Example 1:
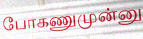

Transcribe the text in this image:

போகணுமுன்னு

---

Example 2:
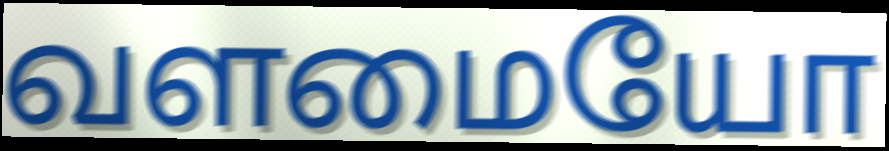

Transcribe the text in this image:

வளமையோ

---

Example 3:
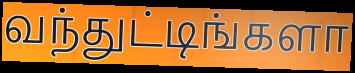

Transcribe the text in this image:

வந்துட்டிங்களா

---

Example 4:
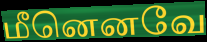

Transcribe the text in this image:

மீனெனவே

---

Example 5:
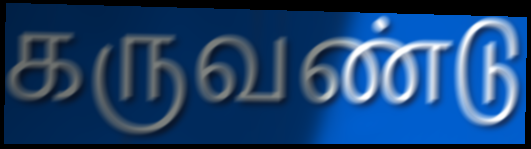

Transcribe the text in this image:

கருவண்டு